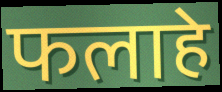
फलाहे